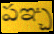
పఞ్చ